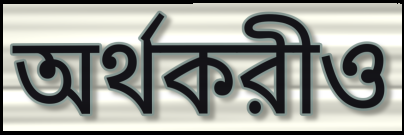
অর্থকরীও